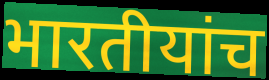
भारतीयांच